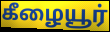
கீழையூர்